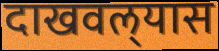
दाखवल्यास